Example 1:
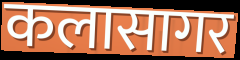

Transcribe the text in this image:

कलासागर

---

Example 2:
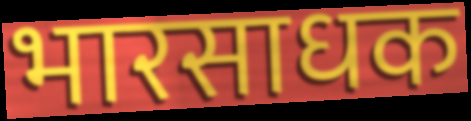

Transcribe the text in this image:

भारसाधक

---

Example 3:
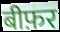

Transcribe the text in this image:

बीफ़र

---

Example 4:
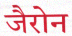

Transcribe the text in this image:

जैरोन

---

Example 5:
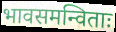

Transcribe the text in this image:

भावसमन्विताः